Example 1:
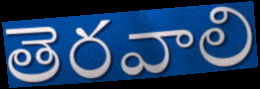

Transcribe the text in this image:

తెరవాలి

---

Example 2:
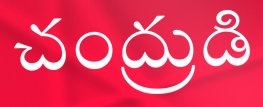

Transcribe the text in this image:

చంద్రుడి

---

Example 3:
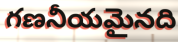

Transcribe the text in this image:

గణనీయమైనది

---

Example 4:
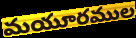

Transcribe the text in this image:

మయూరముల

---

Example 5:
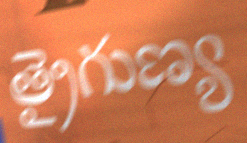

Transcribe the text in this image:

త్రైగుణ్య